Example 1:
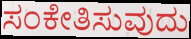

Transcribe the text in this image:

ಸಂಕೇತಿಸುವುದು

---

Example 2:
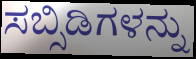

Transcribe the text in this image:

ಸಬ್ಸಿಡಿಗಳನ್ನು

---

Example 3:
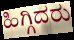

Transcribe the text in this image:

ಹಿಗ್ಗಿದರು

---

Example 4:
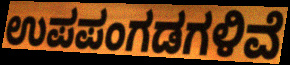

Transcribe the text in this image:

ಉಪಪಂಗಡಗಳಿವೆ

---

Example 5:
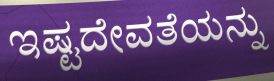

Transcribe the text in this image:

ಇಷ್ಟದೇವತೆಯನ್ನು